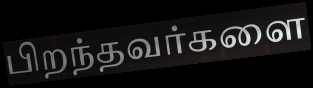
பிறந்தவர்களை